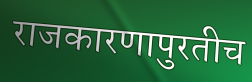
राजकारणापुरतीच